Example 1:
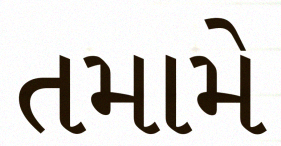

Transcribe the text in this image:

તમામે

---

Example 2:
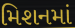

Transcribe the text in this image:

મિશનમાં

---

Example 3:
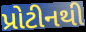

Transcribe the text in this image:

પ્રોટીનથી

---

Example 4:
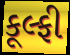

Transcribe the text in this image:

કૂલ્ફી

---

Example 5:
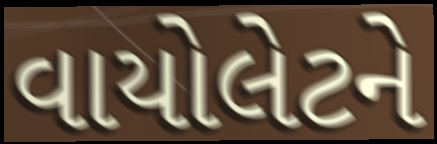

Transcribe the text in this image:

વાયોલેટને